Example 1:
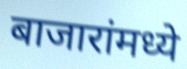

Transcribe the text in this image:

बाजारांमध्ये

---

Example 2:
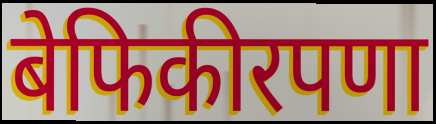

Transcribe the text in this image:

बेफिकीरपणा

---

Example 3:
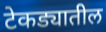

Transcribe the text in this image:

टेकड्यातील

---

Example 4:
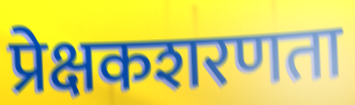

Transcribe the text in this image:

प्रेक्षकशरणता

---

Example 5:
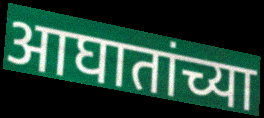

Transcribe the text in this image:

आघातांच्या